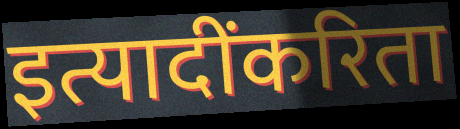
इत्यादींकरिता